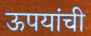
ऊपयांची